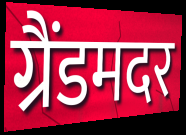
ग्रैंडमदर